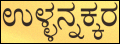
ಉಳ್ಳನ್ನಕ್ಕರ